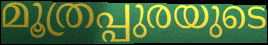
മൂത്രപ്പുരയുടെ